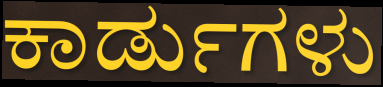
ಕಾರ್ಡುಗಳು